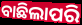
ବାଛିଲାପରି